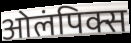
ओलंपिक्स